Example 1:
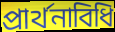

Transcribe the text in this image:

প্রার্থনাবিধি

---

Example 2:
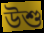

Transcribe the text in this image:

উশু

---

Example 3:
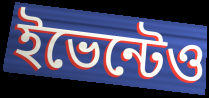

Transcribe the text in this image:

ইভেন্টেও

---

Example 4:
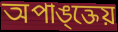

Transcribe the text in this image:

অপাঙ্‌ক্তেয়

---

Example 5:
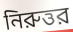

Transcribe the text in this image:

নিরুত্তর